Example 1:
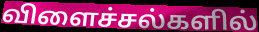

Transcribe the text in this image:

விளைச்சல்களில்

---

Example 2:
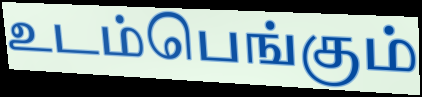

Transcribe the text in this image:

உடம்பெங்கும்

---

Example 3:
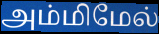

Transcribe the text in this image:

அம்மிமேல்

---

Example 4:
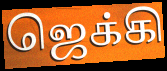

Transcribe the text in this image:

ஜெக்கி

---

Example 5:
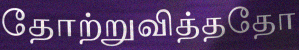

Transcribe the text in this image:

தோற்றுவித்ததோ